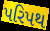
પરિપથ